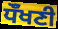
ਧੌਁਖਣੀ